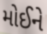
મોઈને